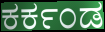
ಕರ್ಕಂಡ